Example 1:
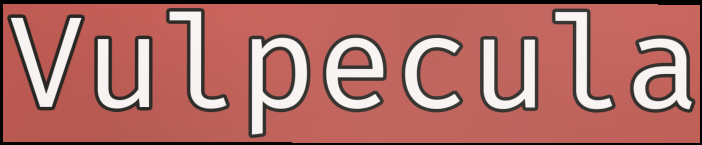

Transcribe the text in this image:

Vulpecula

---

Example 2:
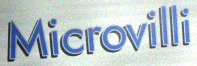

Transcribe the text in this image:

Microvilli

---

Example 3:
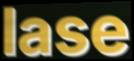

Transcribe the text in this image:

lase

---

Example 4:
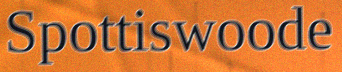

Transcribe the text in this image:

Spottiswoode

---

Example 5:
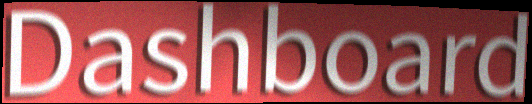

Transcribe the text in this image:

Dashboard